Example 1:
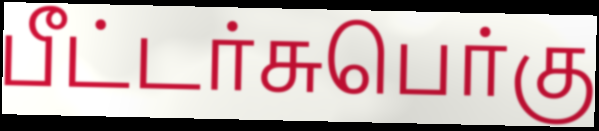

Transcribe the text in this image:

பீட்டர்சுபெர்கு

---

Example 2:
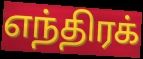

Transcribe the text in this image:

எந்திரக்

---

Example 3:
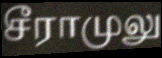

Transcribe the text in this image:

சீராமுலு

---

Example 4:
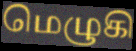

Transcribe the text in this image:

மெழுகி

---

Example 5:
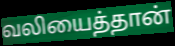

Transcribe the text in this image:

வலியைத்தான்